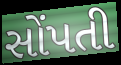
સોંપતી